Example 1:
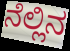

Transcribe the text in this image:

ನೆಲ್ಲಿನ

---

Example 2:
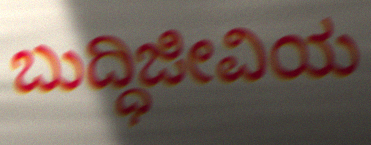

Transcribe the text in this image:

ಬುದ್ಧಿಜೀವಿಯ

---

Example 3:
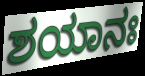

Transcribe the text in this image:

ಶಯಾನಃ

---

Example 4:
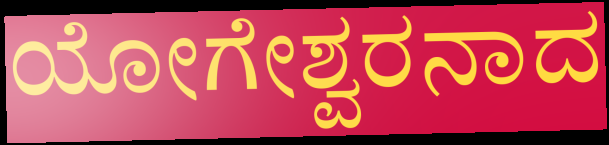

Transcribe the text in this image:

ಯೋಗೇಶ್ವರನಾದ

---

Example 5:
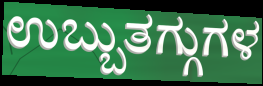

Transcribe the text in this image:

ಉಬ್ಬುತಗ್ಗುಗಳ